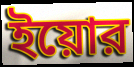
ইয়োর